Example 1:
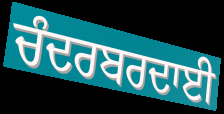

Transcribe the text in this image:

ਚੰਦਰਬਰਦਾਈ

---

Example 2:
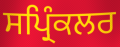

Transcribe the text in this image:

ਸਪ੍ਰਿੰਕਲਰ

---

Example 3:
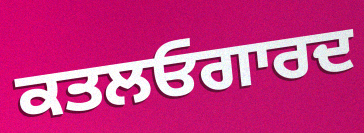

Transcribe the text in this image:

ਕਤਲਓਗਾਰਦ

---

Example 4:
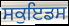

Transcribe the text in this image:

ਸਕੁਇਡਸ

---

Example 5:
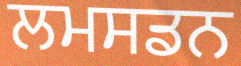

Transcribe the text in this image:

ਲਮਸਡਨ